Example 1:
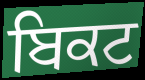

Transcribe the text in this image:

ਬਿਕਟ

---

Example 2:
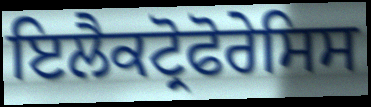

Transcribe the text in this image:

ਇਲੈਕਟ੍ਰੋਫੋਰੇਸਿਸ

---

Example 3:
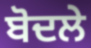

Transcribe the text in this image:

ਬੋਦਲੇ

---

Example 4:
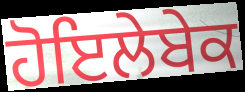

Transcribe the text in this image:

ਹੋਇਲੇਬੇਕ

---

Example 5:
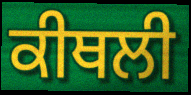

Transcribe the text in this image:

ਕੀਥਲੀ